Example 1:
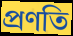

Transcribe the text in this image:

প্রণতি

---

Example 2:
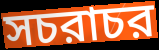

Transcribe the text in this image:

সচরাচর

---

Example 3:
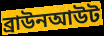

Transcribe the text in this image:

ব্রাউনআউট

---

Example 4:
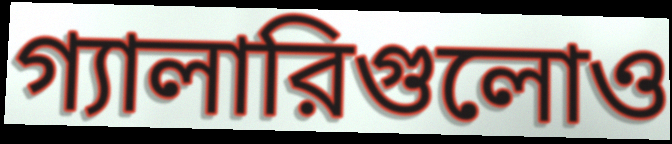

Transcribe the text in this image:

গ্যালারিগুলোও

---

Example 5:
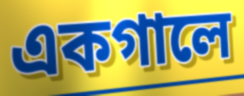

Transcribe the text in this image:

একগালে